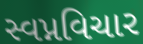
સ્વપ્નવિચાર